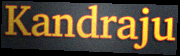
Kandraju